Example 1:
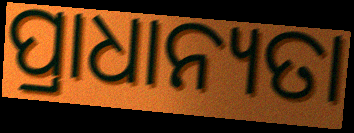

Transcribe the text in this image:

ପ୍ରାଧାନ୍ୟତା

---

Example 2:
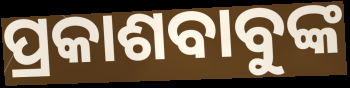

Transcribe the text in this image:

ପ୍ରକାଶବାବୁଙ୍କ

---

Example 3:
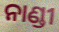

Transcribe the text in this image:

ନାଣ୍ଡୀ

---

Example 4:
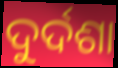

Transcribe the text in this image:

ଦୁର୍ଦଶା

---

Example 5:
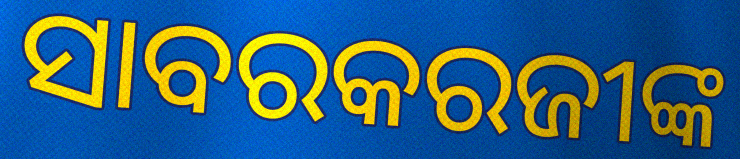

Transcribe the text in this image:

ସାବରକରଜୀଙ୍କ